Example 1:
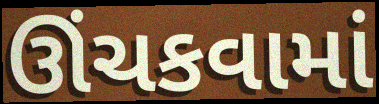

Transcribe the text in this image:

ઊંચકવામાં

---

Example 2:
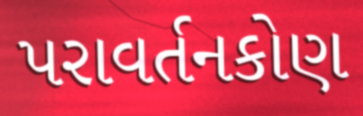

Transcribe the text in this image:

પરાવર્તનકોણ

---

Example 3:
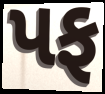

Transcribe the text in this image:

પફ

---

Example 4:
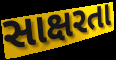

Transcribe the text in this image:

સાક્ષરતા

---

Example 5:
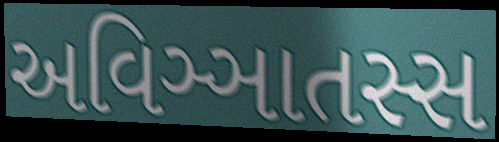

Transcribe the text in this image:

અવિઞ્ઞાતસ્સ